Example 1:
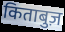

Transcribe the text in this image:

किताबुज़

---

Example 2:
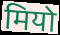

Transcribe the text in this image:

मियो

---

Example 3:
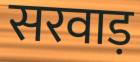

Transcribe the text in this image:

सरवाड़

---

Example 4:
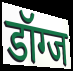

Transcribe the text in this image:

डॉग्ज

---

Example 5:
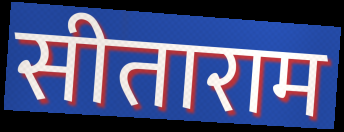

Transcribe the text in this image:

सीताराम